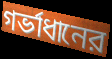
গর্ভাধানের